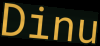
Dinu